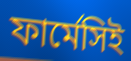
ফার্মেসিই